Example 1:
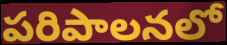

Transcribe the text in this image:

పరిపాలనలో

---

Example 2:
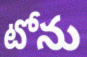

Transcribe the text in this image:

టోను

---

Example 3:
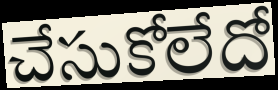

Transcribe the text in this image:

చేసుకోలేదో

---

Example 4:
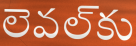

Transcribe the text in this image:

లెవల్‌కు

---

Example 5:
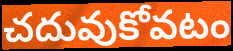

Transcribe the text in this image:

చదువుకోవటం